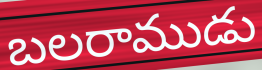
బలరాముడు